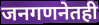
जनगणनेतही